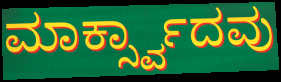
ಮಾರ್ಕ್ಸ್ವಾದವು